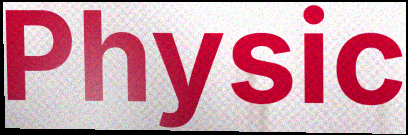
Physic